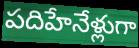
పదిహేనేళ్లుగా